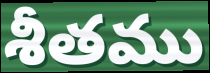
శీతము